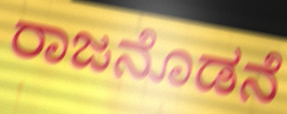
ರಾಜನೊಡನೆ